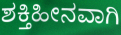
ಶಕ್ತಿಹೀನವಾಗಿ